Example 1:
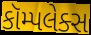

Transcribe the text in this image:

કૉમ્પલેક્સ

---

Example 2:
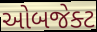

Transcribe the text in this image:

ઓબજેક્ટ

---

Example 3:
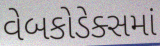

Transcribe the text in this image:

વેબકોડેક્સમાં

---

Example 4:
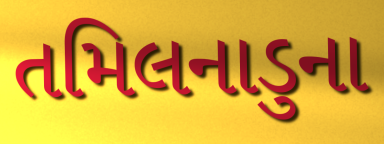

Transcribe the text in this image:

તમિલનાડુના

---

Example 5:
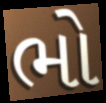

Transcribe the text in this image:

ભો